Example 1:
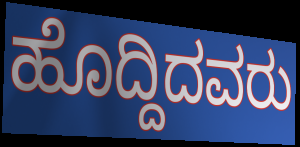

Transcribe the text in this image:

ಹೊದ್ದಿದವರು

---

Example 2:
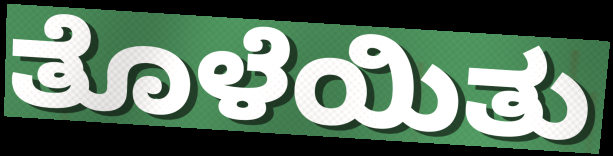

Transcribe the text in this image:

ತೊಳೆಯಿತು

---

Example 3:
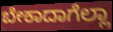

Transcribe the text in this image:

ಬೇಕಾದಾಗೆಲ್ಲಾ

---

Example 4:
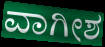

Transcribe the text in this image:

ವಾಗೀಶ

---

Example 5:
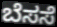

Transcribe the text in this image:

ಬೆಸಸೆ